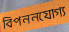
বিপননযোগ্য